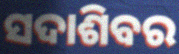
ସଦାଶିବର